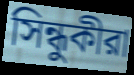
সিন্ধুকীরা